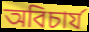
অবিচার্য